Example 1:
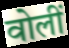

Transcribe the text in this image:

वोलीं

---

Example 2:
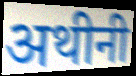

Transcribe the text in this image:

अथीनी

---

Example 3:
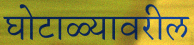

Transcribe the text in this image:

घोटाळ्यावरील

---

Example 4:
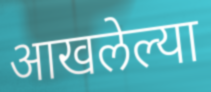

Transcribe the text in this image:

आखलेल्या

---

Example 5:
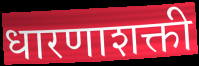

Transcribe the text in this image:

धारणाशक्ती